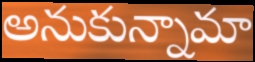
అనుకున్నామా